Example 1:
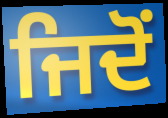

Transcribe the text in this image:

ਜਿਦੋਂ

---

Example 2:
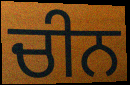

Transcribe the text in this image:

ਚੀਨ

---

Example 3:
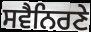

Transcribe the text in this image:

ਸਵੈਨਿਰਣੇ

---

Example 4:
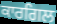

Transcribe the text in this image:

ਕਾਰਗਿਲ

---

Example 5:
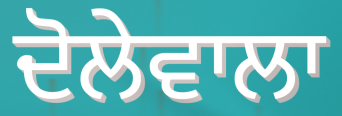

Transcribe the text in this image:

ਦੋਲੇਵਾਲਾ